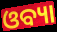
ଓବ୍ୟା